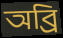
অব্ৰি